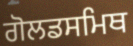
ਗੋਲਡਸਮਿਥ